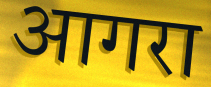
आगरा